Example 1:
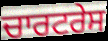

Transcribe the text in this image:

ਚਾਰਟਰੇਸ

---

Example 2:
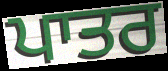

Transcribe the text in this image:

ਪਾਤਰ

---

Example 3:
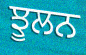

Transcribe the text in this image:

ਝੂਲਨ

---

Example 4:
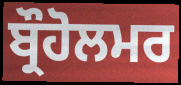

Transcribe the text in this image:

ਬ੍ਰੌਹੋਲਮਰ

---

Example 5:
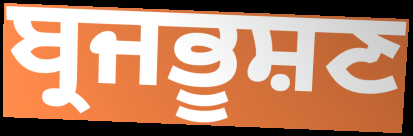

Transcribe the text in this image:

ਬ੍ਰਜਭੂਸ਼ਣ